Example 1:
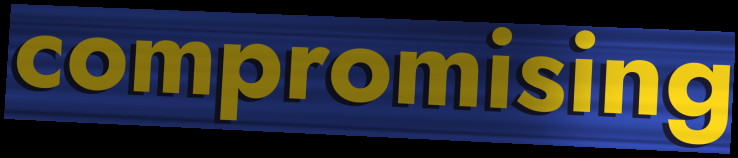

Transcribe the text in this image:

compromising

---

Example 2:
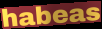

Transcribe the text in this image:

habeas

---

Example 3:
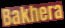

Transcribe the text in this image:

Bakhera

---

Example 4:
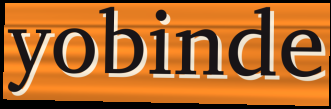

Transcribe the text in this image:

yobinde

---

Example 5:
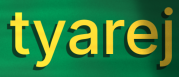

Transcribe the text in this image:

tyarej